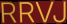
RRVJ